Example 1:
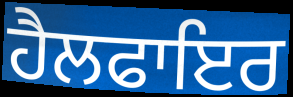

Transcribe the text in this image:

ਹੈਲਫਾਇਰ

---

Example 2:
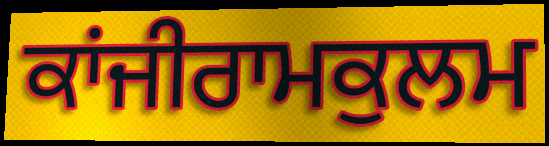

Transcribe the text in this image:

ਕਾਂਜੀਰਾਮਕੁਲਮ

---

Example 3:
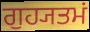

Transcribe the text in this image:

ਗੁਹ੍ਯਤਮਂ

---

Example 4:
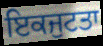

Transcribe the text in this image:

ਇਕਜੁਟਤਾ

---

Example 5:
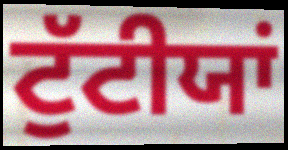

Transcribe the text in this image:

ਟੁੱਟੀਯਾਂ